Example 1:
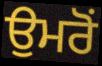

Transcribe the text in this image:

ਉਮਰੋਂ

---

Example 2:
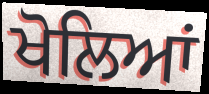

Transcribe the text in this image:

ਖੋਲਿਆਂ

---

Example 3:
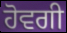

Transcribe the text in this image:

ਹੋਵਗੀ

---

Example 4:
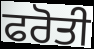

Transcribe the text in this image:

ਫਰੋਤੀ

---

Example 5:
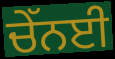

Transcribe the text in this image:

ਚੇੱਨਈ